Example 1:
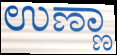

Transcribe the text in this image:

ಉಣ್ಣಾ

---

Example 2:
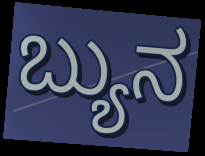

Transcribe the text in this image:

ಬ್ಯುನ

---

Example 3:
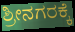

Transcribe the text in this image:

ಶ್ರೀನಗರಕ್ಕೆ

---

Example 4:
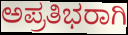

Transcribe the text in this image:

ಅಪ್ರತಿಭರಾಗಿ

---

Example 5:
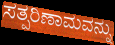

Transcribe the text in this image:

ಸತ್ಪರಿಣಾಮವನ್ನು